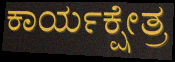
ಕಾರ್ಯಕ್ಷೇತ್ರ